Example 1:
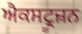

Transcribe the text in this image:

ਐਕਸਟ੍ਰੂਜ਼ਨ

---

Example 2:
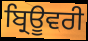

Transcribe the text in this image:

ਬ੍ਰਿਊਵਰੀ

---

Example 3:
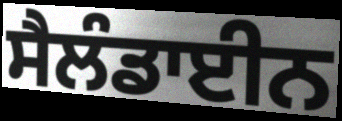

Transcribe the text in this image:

ਸੈਲੰਡਾਈਨ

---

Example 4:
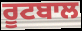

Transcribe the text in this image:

ਰੂਟਬਾਲ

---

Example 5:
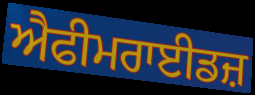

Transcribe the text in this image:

ਐਫੀਮਰਾਈਡਜ਼